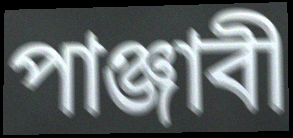
পাঞ্জাবী